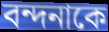
বন্দনাকে